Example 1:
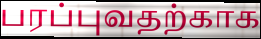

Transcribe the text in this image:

பரப்புவதற்காக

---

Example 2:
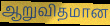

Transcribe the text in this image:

ஆறுவிதமான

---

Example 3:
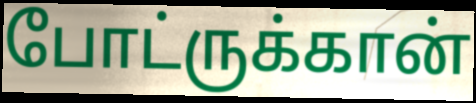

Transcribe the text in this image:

போட்ருக்கான்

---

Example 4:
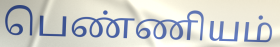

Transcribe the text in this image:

பெண்ணியம்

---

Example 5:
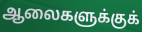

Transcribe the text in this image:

ஆலைகளுக்குக்